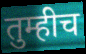
तुम्हीच